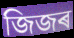
জিজৰ